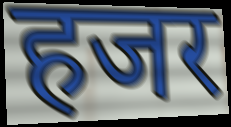
हजर